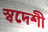
স্বদেশী